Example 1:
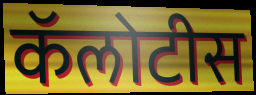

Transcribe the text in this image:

कॅलोटीस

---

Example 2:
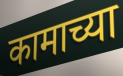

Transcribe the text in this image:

कामाच्या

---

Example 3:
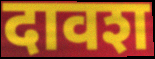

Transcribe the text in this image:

दावश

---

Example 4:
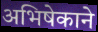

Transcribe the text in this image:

अभिषेकाने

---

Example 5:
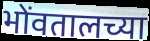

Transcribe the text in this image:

भोंवतालच्या